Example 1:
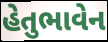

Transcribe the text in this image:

હેતુભાવેન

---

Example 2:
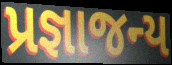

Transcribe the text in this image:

પ્રજ્ઞાજન્ય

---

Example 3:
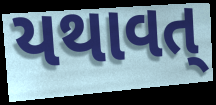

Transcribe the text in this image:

યથાવત્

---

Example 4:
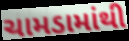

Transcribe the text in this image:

ચામડામાંથી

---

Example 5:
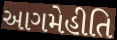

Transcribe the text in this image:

આગમેહીતિ